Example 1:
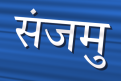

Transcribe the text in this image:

संजमु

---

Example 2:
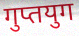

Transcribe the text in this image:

गुप्तयुग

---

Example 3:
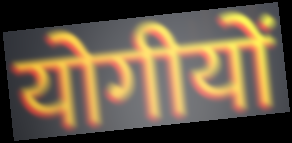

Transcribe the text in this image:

योगीयों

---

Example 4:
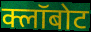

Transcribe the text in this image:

क्लॉबोट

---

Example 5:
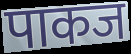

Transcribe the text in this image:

पाकज